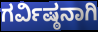
ಗರ್ವಿಷ್ಠನಾಗಿ